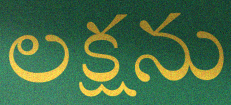
లక్షను